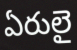
ఏరులై